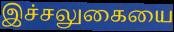
இச்சலுகையை